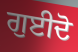
ਗੁਈਦੋ